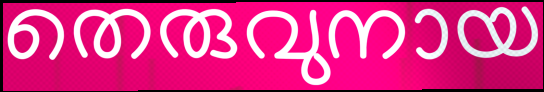
തെരുവുനായ